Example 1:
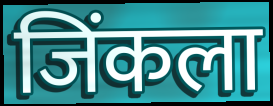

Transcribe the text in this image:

जिंकला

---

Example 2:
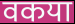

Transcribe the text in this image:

वकया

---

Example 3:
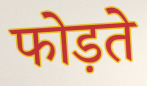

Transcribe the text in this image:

फोड़ते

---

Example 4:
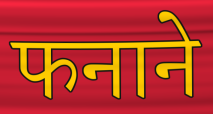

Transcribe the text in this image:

फनाने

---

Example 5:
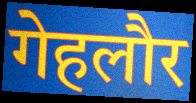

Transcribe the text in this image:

गेहलौर